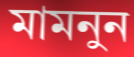
মামনুন